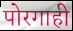
पोरगाही